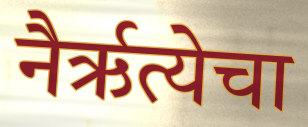
नैर्ऋत्येचा